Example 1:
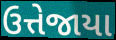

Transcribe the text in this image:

ઉત્તેજાયા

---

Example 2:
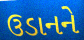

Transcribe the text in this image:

ઉડાનને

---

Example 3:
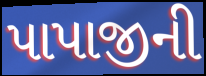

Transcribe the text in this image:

પાપાજીની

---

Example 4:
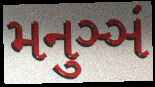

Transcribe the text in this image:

મનુઞ્ઞં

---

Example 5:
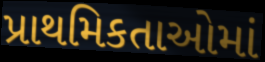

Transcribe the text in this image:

પ્રાથમિકતાઓમાં